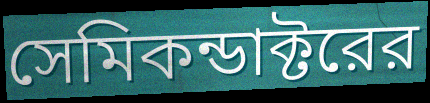
সেমিকন্ডাক্টরের